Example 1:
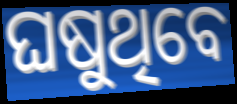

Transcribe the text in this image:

ଘଷୁଥିବେ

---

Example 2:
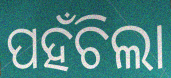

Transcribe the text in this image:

ପହଁଚିଲା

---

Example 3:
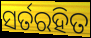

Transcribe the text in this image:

ସର୍ତରହିତ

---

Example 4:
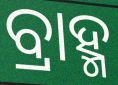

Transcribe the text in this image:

ବ୍ରାହ୍ମ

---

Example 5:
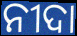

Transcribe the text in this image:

ନୀଦା